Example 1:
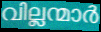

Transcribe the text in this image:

വില്ലന്മാർ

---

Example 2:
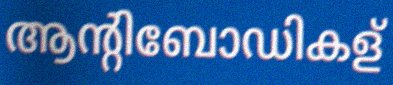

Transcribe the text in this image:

ആന്റിബോഡികള്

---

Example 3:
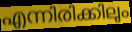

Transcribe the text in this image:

എന്നിരിക്കിലും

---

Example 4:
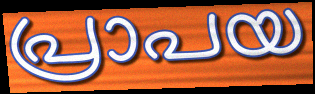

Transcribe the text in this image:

പ്രാപയ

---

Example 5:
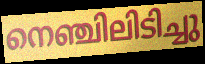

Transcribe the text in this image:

നെഞ്ചിലിടിച്ചു